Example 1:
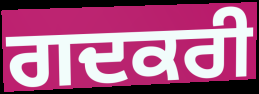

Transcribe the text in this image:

ਗਦਕਰੀ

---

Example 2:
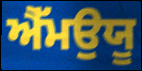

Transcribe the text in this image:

ਐੱਮਉਯੂ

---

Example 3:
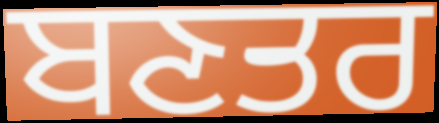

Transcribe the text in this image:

ਬਣਤਰ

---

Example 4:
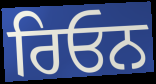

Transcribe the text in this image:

ਰਿਓਨ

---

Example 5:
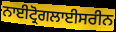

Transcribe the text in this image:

ਨਾਈਟ੍ਰੋਗਲਾਈਸਰੀਨ